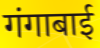
गंगाबाई